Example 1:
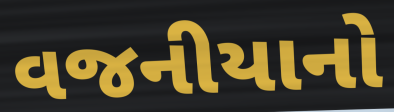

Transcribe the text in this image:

વજનીયાનો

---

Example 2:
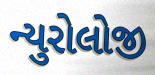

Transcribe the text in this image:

ન્યુરોલોજી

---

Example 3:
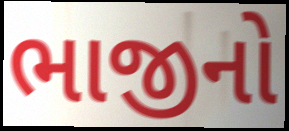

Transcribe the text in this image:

ભાજીનો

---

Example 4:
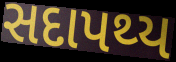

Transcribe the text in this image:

સદાપથ્ય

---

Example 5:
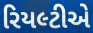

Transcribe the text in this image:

રિયલ્ટીએ